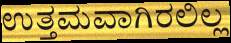
ಉತ್ತಮವಾಗಿರಲಿಲ್ಲ